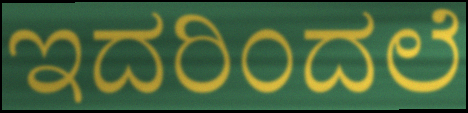
ಇದರಿಂದಲೆ